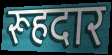
रूहदार